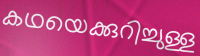
കഥയെക്കുറിച്ചുള്ള